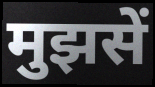
मुझसें